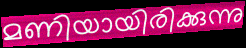
മണിയായിരിക്കുന്നു